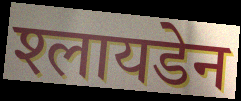
श्लायडेन